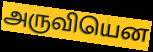
அருவியென